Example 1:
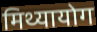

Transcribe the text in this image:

मिथ्यायोग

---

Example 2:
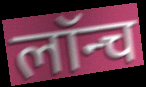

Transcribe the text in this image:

लॉन्‍च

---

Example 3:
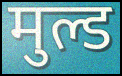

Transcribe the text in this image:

मुल्ड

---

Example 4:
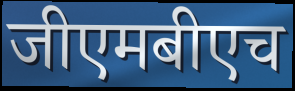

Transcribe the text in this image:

जीएमबीएच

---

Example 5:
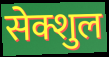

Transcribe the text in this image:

सेक्शुल